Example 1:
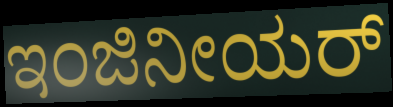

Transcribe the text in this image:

ಇಂಜಿನೀಯರ್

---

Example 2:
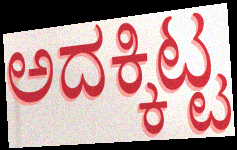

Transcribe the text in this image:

ಅದಕ್ಕಿಟ್ಟ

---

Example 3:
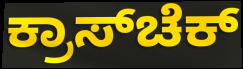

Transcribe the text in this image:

ಕ್ರಾಸ್‌ಚೆಕ್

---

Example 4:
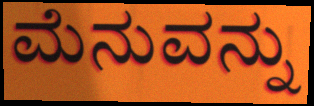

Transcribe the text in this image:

ಮೆನುವನ್ನು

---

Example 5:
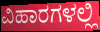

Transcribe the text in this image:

ವಿಹಾರಗಳಲ್ಲಿ